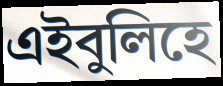
এইবুলিহে